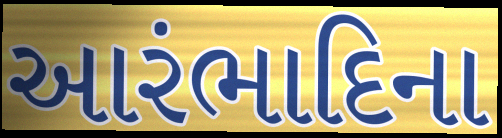
આરંભાદિના